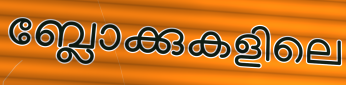
ബ്ലോക്കുകളിലെ